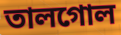
তালগোল